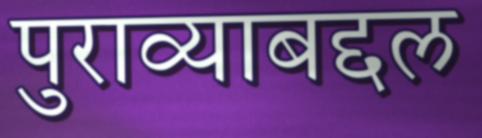
पुराव्याबद्दल